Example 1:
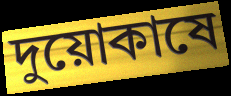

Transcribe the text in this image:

দুয়োকাষে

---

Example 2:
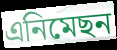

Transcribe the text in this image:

এনিমেছন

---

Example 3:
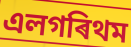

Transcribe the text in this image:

এলগৰিথম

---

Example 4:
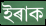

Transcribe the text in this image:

ইৰাক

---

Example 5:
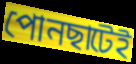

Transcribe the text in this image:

পোনছাটেই